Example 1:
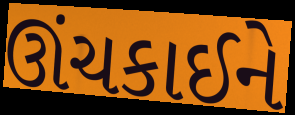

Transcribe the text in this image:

ઊંચકાઈને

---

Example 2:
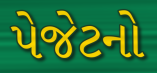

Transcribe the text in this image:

પેજેટનો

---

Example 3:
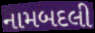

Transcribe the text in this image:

નામબદલી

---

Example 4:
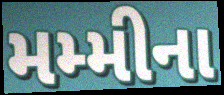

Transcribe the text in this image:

મમ્મીના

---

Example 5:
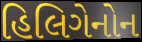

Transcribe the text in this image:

હિલિગેનોન